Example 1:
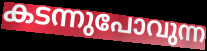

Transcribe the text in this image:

കടന്നുപോവുന്ന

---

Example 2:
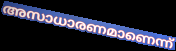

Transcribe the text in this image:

അസാധാരണമാണെന്ന്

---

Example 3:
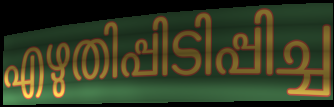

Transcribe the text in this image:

എഴുതിപ്പിടിപ്പിച്ച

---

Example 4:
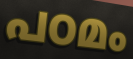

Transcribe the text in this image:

പഠമം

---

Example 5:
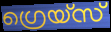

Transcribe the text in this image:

ഗ്രെയ്സ്